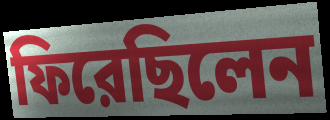
ফিরেছিলেন